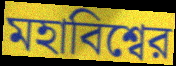
মহাবিশ্বের